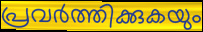
പ്രവർത്തിക്കുകയും